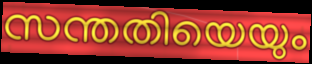
സന്തതിയെയും